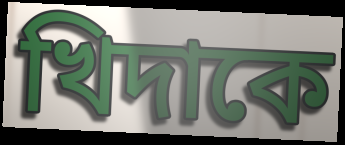
খিদাকে